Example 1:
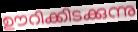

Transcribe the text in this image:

ഊറിക്കിടക്കുന്നു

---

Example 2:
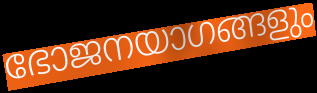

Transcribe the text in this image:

ഭോജനയാഗങ്ങളും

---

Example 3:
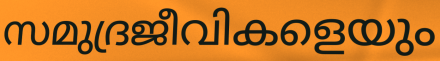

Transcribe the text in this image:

സമുദ്രജീവികളെയും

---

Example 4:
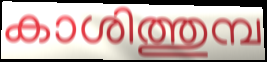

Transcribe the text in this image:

കാശിത്തുമ്പ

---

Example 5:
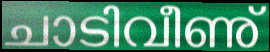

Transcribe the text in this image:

ചാടിവീണു്